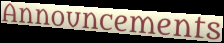
Announcements